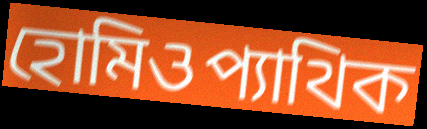
হোমিওপ্যাথিক